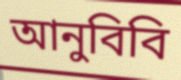
আনুবিবি